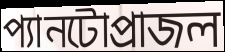
প্যানটোপ্রাজল